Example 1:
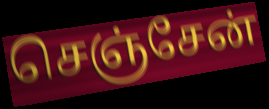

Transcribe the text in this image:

செஞ்சேன்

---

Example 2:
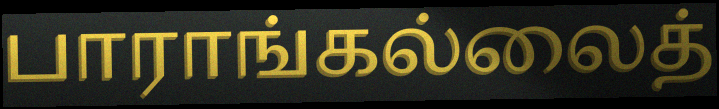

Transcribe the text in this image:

பாராங்கல்லைத்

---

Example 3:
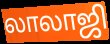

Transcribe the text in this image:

லாலாஜி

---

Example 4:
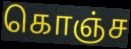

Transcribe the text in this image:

கொஞ்ச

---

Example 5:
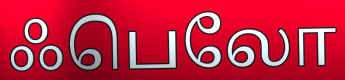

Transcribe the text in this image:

ஃபெலோ